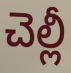
చెల్లీ